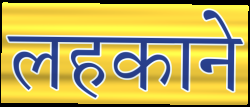
लहकाने